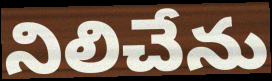
నిలిచేను